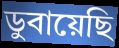
ডুবায়েছি